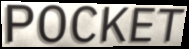
POCKET